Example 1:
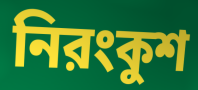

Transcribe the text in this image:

নিরংকুশ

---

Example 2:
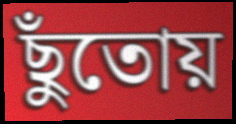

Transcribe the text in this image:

ছুঁতোয়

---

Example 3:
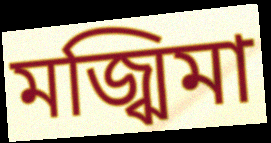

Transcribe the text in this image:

মজ্ঝিমা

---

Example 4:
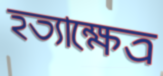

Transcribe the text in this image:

হত্যাক্ষেত্র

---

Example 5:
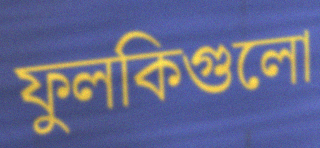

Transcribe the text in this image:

ফুলকিগুলো